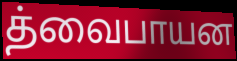
த்வைபாயன